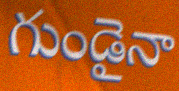
గుండైనా